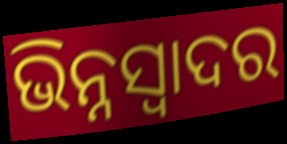
ଭିନ୍ନସ୍ବାଦର